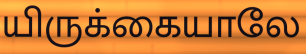
யிருக்கையாலே